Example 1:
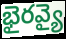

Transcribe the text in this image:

భైరవ్యై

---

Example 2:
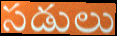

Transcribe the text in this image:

సడులు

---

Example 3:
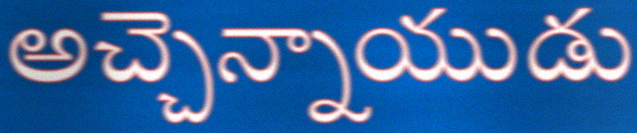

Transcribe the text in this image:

అచ్చెన్నాయుడు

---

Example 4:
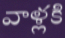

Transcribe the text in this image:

వాళ్లకి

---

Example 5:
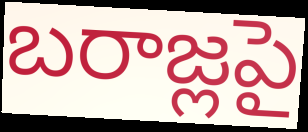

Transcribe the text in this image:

బరాజ్లపై